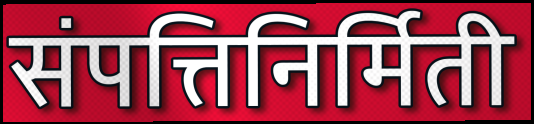
संपत्तिनिर्मिती